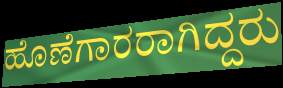
ಹೊಣೆಗಾರರಾಗಿದ್ದರು